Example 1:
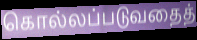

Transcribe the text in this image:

கொல்லப்படுவதைத்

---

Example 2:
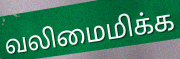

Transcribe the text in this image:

வலிமைமிக்க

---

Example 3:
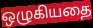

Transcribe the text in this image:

ஒழுகியதை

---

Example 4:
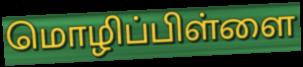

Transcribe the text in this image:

மொழிப்பிள்ளை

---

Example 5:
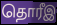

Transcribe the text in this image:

தொரீஇ